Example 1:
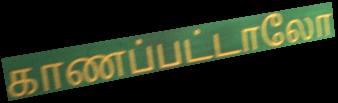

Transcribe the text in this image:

காணப்பட்டாலோ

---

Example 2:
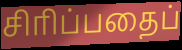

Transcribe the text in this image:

சிரிப்பதைப்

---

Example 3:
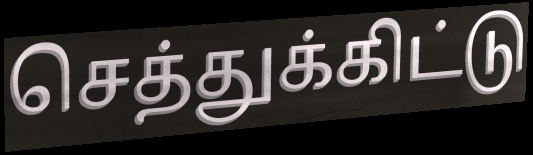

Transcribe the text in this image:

செத்துக்கிட்டு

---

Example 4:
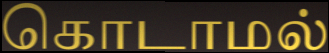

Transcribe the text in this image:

கொடாமல்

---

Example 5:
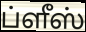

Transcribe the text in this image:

ப்ளீஸ்